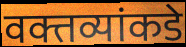
वक्तव्यांकडे